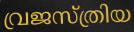
വ്രജസ്ത്രിയ